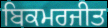
ਬਿਕਮਰਜੀਤ